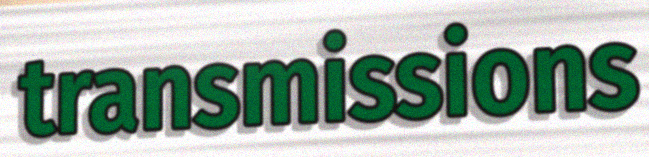
transmissions